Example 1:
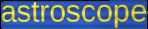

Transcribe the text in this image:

astroscope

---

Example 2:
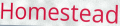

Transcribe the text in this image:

Homestead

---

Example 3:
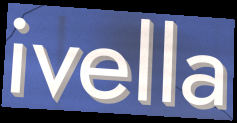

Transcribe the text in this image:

ivella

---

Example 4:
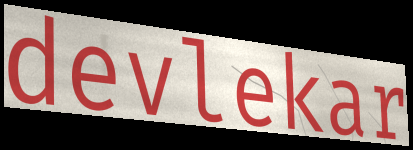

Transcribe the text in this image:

devlekar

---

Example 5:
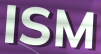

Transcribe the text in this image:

ISM